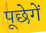
पूछेगें